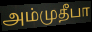
அம்முதீபா